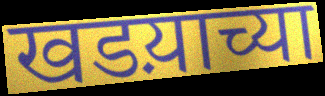
खडय़ाच्या